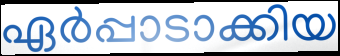
ഏർപ്പാടാക്കിയ